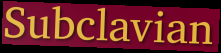
Subclavian